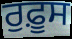
ਰੁਫ਼ੂਸ